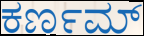
ಕರ್ಣಮ್